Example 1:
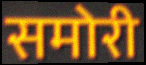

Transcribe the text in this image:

समोरी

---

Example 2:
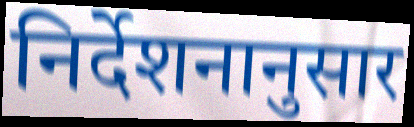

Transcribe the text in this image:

निर्देशनानुसार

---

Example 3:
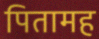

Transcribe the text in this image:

पितामह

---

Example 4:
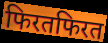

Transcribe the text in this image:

फिरतफिरत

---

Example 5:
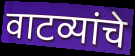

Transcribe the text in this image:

वाटव्यांचे